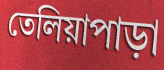
তেলিয়াপাড়া